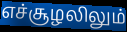
எச்சூழலிலும்